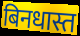
बिनधास्त